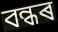
বন্ধৰ